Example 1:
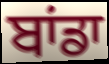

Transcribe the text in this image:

ਬਾਂਡਾ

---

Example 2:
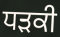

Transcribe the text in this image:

ਧੜਕੀ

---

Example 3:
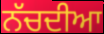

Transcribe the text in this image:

ਨੱਚਦੀਆ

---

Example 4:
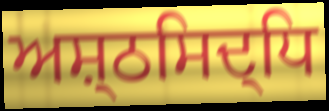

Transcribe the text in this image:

ਅਸ਼੍ਠਸਿਦ੍ਧਿ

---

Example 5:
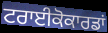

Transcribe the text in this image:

ਟਰਾਈਕੋਕਾਰਡਾਂ